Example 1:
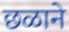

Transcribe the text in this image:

छळाने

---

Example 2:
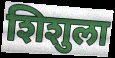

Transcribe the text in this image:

शिशुला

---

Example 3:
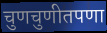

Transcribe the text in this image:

चुणचुणीतपणा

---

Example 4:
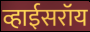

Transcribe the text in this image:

व्हाईसरॉय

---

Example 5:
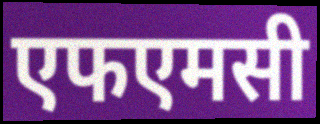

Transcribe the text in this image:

एफएमसी